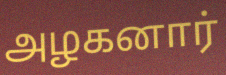
அழகனார்